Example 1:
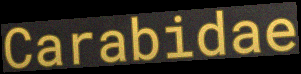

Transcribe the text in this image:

Carabidae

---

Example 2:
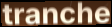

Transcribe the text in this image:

tranche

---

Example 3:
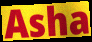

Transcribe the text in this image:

Asha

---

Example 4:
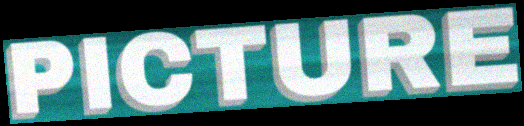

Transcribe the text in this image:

PICTURE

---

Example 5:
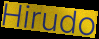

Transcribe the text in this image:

Hirudo